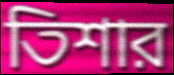
তিশার